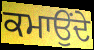
ਕਮਾਉਂਦੇ